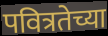
पवित्रतेच्या